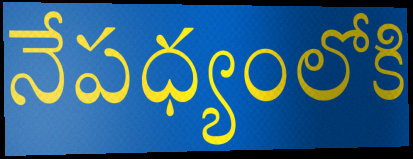
నేపధ్యంలోకి